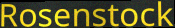
Rosenstock